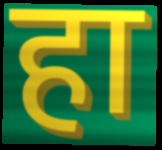
हा